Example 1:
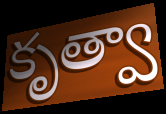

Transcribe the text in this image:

కృత్వా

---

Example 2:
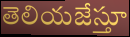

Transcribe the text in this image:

తెలియజేస్తూ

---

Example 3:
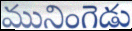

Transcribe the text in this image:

మునింగెడు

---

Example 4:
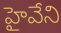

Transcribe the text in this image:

హైవేని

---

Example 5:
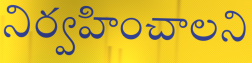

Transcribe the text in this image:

నిర్వహించాలని